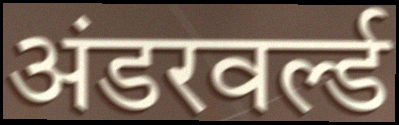
अंडरवर्ल्‍ड